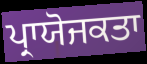
ਪ੍ਰਾਯੋਜਕਤਾ